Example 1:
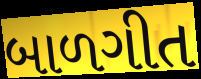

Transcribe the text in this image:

બાળગીત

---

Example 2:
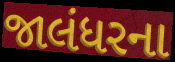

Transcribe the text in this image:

જાલંધરના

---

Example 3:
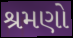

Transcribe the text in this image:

શ્રમણો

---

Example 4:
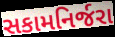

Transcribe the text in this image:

સકામનિર્જરા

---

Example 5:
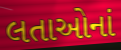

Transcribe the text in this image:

લતાઓનાં